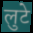
लुटे